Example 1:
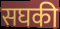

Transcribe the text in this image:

सघकी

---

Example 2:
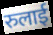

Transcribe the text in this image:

रुलाई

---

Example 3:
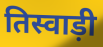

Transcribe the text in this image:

तिस्वाड़ी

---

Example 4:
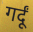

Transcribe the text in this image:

गर्दूं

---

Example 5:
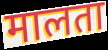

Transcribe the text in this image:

मालता